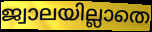
ജ്വാലയില്ലാതെ